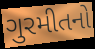
ગુરમીતનો